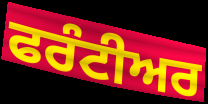
ਫਰੰਟੀਅਰ